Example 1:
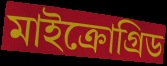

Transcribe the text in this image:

মাইক্রোগ্রিড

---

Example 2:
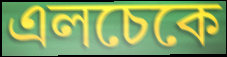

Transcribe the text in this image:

এলচেকে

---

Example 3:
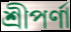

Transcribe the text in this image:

শ্রীপর্ণা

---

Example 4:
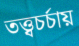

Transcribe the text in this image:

তত্ত্বচর্চায়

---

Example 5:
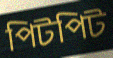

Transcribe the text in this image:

পিটপিট